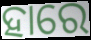
ହାରେ